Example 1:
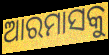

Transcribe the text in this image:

ଆରମାସକୁ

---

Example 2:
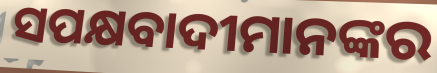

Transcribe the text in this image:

ସପକ୍ଷବାଦୀମାନଙ୍କର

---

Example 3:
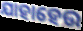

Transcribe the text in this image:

ଯାହାହେଉ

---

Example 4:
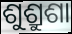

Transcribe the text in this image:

ଶୁଶ୍ରୁଶା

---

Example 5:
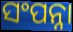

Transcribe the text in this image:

ସଂପନ୍ନା